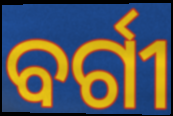
ବର୍ଗୀ